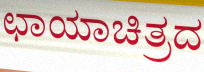
ಛಾಯಾಚಿತ್ರದ